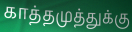
காத்தமுத்துக்கு